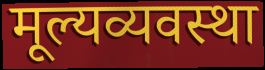
मूल्यव्यवस्था